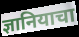
ज्ञानियाचा